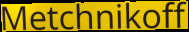
Metchnikoff